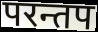
परन्तप